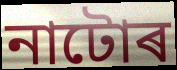
নাটোৰ